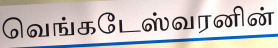
வெங்கடேஸ்வரனின்